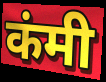
कंमी